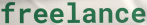
freelance